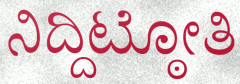
ನಿದ್ದಿಟ್ಠೋತಿ